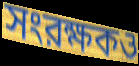
সংরক্ষকও